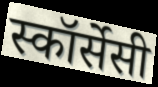
स्कॉर्सेसी